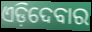
ଏଡ଼ିଦେବାର